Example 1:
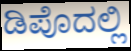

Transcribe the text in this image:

ಡಿಪೊದಲ್ಲಿ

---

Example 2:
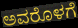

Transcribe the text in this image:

ಅವರೊಳಗೆ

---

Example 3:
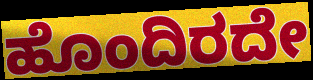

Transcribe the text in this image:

ಹೊಂದಿರದೇ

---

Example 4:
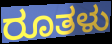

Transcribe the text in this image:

ರೂತಳು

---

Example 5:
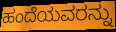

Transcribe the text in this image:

ಹಂದೆಯವರನ್ನು